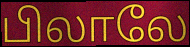
பிலாலே